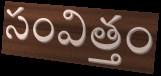
సంవిత్తం